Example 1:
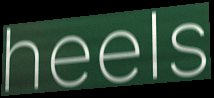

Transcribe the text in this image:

heels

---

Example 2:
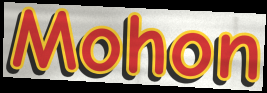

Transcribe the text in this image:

Mohon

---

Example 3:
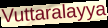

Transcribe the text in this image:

Vuttaralayya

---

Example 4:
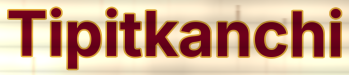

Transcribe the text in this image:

Tipitkanchi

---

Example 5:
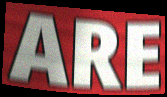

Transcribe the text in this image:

ARE